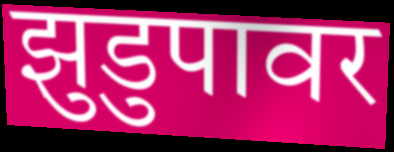
झुडुपावर